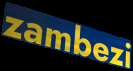
zambezi